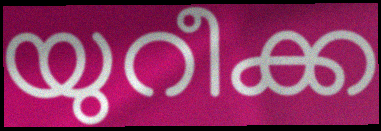
യുറീക്ക